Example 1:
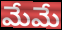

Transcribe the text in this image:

మేమే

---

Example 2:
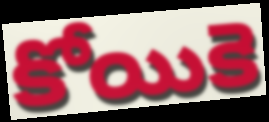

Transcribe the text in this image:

కోయికె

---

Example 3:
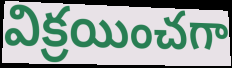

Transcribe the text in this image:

విక్రయించగా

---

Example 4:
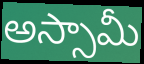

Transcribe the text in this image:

అస్సామీ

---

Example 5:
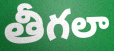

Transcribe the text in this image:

తీగలా